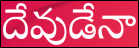
దేవుడేనా